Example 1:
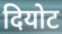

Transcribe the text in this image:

दियोट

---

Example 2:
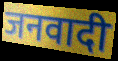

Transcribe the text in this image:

जनवादी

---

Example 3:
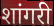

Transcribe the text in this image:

शांगरी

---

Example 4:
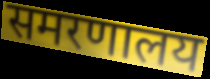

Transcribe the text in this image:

समरणालय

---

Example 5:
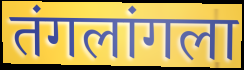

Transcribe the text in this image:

तंगलांगला